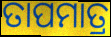
ତାପମାତ୍ର